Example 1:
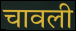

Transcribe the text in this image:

चावली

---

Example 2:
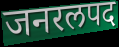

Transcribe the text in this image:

जनरलपद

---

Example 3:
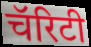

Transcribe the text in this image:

चॅरिटी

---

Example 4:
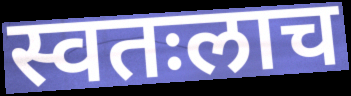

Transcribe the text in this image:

स्वतःलाच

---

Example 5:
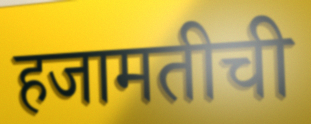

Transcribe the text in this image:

हजामतीची